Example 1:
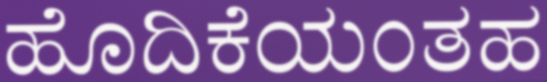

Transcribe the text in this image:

ಹೊದಿಕೆಯಂತಹ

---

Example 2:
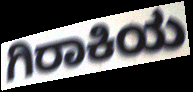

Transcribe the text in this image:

ಗಿರಾಕಿಯ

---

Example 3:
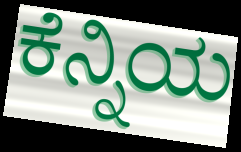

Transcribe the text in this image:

ಕೆನ್ನಿಯ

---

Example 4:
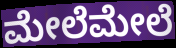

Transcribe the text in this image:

ಮೇಲೆಮೇಲೆ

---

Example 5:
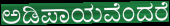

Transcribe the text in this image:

ಅಡಿಪಾಯವೆಂದರೆ